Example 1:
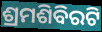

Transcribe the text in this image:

ଶ୍ରମଶିବିରଟି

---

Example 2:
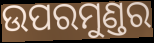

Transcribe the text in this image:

ଉପରମୁଣ୍ଡର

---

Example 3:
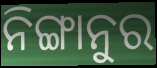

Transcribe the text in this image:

ନିଙ୍ଗାନୁର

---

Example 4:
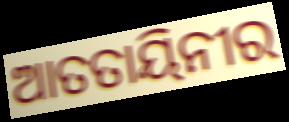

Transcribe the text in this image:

ଆତତାୟିନୀର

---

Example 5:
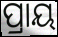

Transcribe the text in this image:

ପ୍ରାୟ